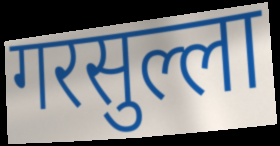
गरसुल्ला